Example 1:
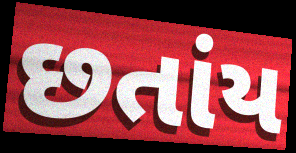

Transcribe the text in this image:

છતાંય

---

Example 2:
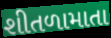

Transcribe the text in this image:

શીતળામાતા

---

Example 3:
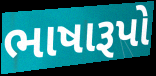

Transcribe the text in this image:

ભાષારૂપો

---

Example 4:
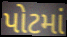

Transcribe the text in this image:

પોટમાં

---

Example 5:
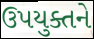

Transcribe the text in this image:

ઉપયુક્તને